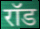
रॉड